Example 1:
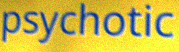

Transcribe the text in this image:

psychotic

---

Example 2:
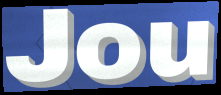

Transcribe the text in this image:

Jou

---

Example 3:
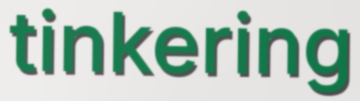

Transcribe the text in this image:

tinkering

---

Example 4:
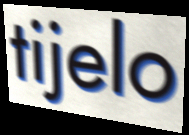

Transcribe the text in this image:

tijelo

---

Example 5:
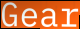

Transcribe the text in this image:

Gear